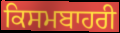
ਕਿਸਮਬਾਹਰੀ